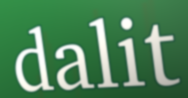
dalit